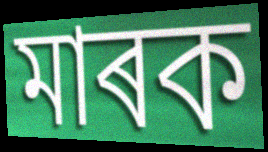
মাৰক